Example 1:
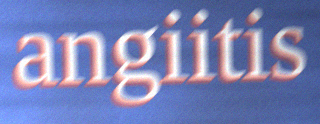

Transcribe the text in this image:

angiitis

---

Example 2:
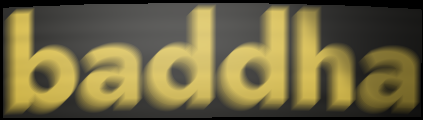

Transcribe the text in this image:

baddha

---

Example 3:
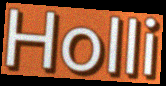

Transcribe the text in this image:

Holli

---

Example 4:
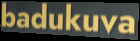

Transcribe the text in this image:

badukuva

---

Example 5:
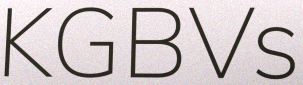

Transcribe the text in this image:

KGBVs